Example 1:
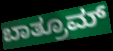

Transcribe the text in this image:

ಬಾತ್ರೂಮ್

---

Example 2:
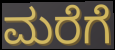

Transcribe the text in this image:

ಮರೆಗೆ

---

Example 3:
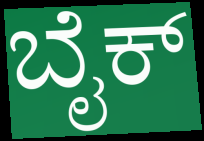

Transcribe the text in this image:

ಬೈಕ್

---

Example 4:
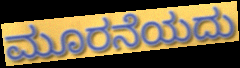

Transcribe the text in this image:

ಮೂರನೆಯದು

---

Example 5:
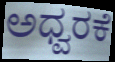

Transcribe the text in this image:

ಅಧ್ವರಕೆ